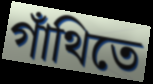
গাঁথিতে